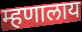
म्हणालाय